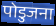
पोडुजना